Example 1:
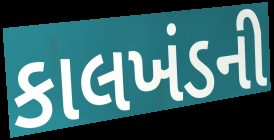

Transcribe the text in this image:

કાલખંડની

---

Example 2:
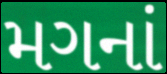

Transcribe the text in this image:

મગનાં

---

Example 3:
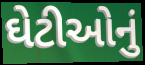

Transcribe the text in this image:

ઘેટીઓનું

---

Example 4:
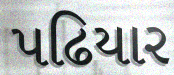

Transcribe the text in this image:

પઢિયાર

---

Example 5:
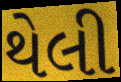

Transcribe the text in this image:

થેલી